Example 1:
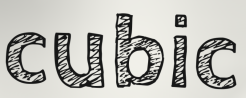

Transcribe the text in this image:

cubic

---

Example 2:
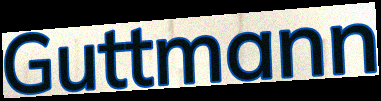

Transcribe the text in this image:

Guttmann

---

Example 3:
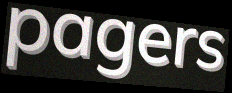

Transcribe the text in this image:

pagers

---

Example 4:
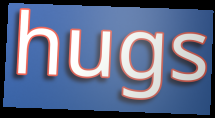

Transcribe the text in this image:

hugs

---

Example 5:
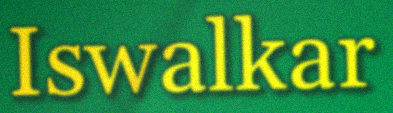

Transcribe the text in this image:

Iswalkar